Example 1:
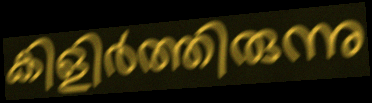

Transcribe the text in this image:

കിളിർത്തിരുന്നു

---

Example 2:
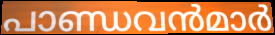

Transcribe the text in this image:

പാണ്ഡവൻമാർ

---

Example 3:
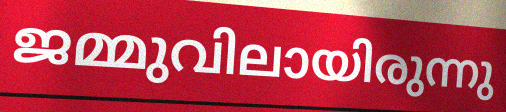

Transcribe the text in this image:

ജമ്മുവിലായിരുന്നു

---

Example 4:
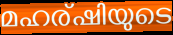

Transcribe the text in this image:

മഹര്ഷിയുടെ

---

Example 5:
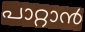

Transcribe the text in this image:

പാറ്റാൻ